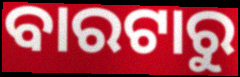
ବାରଟାରୁ